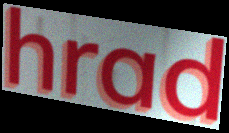
hrad